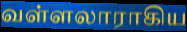
வள்ளலாராகிய